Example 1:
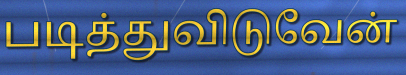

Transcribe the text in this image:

படித்துவிடுவேன்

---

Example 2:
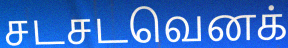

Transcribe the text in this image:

சடசடவெனக்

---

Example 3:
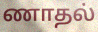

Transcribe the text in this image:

ணாதல்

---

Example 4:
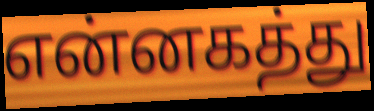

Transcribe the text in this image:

என்னகத்து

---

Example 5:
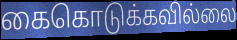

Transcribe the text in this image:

கைகொடுக்கவில்லை